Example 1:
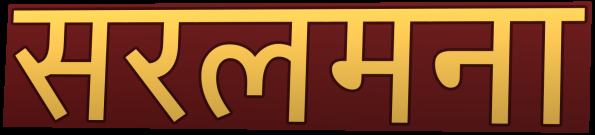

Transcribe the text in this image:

सरलमना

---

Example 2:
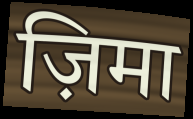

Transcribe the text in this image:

ज़िमा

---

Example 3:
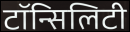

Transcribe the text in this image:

टॉन्सिलिटी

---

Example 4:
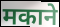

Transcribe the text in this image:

मकाने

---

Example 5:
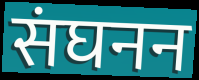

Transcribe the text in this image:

संघनन